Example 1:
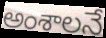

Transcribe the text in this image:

అంశాలనే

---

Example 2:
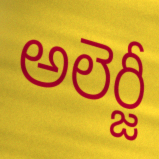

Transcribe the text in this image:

అలెర్జీ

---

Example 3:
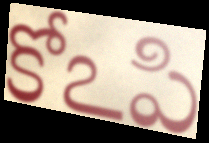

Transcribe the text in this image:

కోఽపి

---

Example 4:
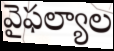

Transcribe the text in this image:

వైఫల్యాల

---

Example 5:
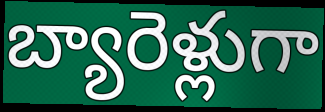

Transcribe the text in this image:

బ్యారెళ్లుగా